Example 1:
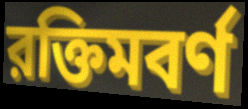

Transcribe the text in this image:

রক্তিমবর্ণ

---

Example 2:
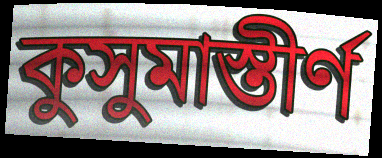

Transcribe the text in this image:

কুসুমাস্তীর্ণ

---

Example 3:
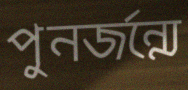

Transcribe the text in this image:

পুনর্জন্মে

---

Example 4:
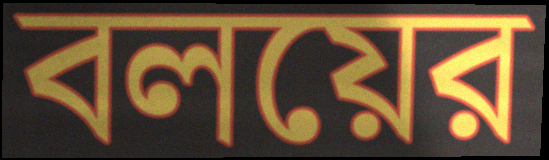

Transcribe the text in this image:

বলয়ের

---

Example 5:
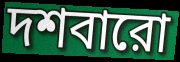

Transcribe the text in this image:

দশবারো